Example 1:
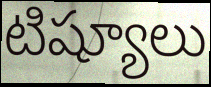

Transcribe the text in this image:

టిష్యూలు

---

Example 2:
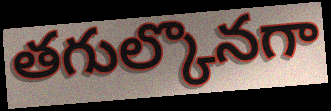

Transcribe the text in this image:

తగుల్కొనగా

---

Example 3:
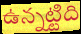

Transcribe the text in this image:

ఉన్నట్టిది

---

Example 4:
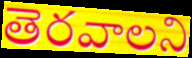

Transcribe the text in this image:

తెరవాలని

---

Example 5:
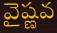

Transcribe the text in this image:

వైష్ణవ